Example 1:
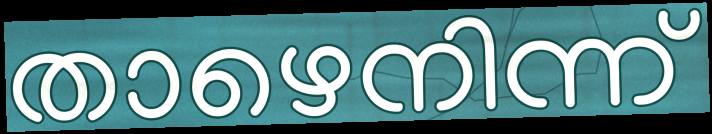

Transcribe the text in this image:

താഴെനിന്ന്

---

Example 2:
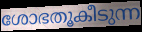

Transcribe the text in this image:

ശോഭതൂകീടുന്ന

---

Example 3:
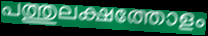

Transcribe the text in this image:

പത്തുലക്ഷത്തോളം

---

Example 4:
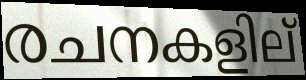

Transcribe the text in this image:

രചനകളില്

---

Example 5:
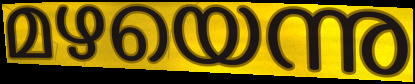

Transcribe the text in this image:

മഴയെന്നു